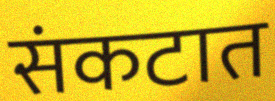
संकटात